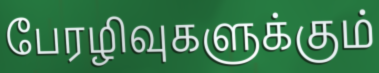
பேரழிவுகளுக்கும்